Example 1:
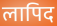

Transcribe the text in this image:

लापिद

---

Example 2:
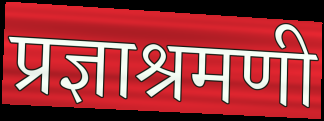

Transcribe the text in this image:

प्रज्ञाश्रमणी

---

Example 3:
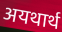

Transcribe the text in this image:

अयथार्थ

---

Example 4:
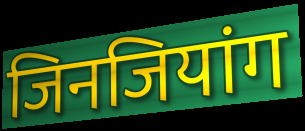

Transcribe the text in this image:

जिनजियांग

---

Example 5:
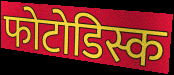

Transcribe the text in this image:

फोटोडिस्क